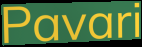
Pavari